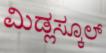
ಮಿಡ್ಲಸ್ಕೂಲ್